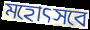
মহোৎসবে